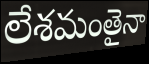
లేశమంతైనా